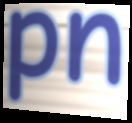
pn